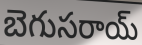
బెగుసరాయ్